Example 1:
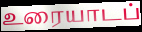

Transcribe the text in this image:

உரையாடப்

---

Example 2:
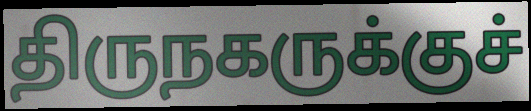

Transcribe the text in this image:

திருநகருக்குச்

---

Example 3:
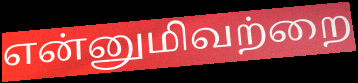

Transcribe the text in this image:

என்னுமிவற்றை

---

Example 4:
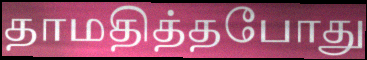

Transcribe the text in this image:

தாமதித்தபோது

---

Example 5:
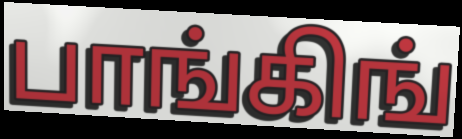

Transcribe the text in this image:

பாங்கிங்